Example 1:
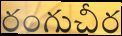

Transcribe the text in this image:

రంగుచీర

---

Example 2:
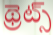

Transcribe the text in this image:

థ్రెట్స్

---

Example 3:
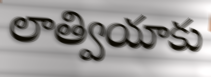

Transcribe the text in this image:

లాత్వియాకు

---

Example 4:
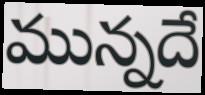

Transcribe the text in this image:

మున్నదే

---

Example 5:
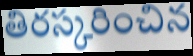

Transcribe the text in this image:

తిరస్కరించిన